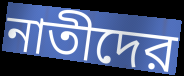
নাতীদের